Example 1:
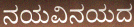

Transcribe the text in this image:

ನಯವಿನಯದ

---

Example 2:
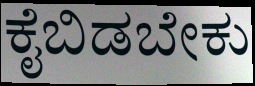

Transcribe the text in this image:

ಕೈಬಿಡಬೇಕು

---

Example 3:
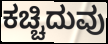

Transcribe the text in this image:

ಕಚ್ಚಿದುವು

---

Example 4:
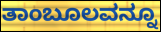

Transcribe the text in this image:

ತಾಂಬೂಲವನ್ನೂ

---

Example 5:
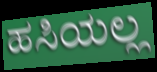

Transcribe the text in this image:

ಹಸಿಯಲ್ಲ